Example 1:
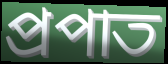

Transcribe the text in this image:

প্রপাত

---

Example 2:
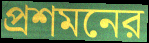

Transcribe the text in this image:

প্রশমনের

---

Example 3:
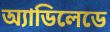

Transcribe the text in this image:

অ্যাডিলেডে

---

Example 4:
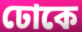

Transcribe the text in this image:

ঢোকে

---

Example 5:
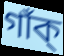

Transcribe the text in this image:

গাঁক্